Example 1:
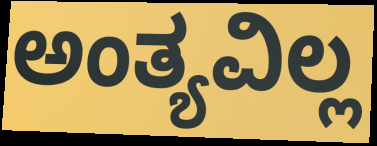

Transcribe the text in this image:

ಅಂತ್ಯವಿಲ್ಲ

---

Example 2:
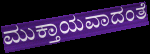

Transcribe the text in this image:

ಮುಕ್ತಾಯವಾದಂತೆ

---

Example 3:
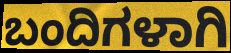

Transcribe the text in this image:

ಬಂದಿಗಳಾಗಿ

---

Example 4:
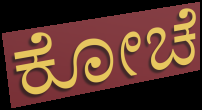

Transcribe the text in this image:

ಕೋಚೆ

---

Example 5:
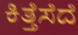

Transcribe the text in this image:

ಕಿತ್ತೆಸೆದೆ